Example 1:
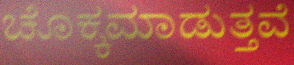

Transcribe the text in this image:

ಚೊಕ್ಕಮಾಡುತ್ತವೆ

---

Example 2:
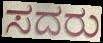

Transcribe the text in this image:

ಸದರು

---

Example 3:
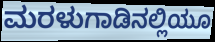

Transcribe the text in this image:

ಮರಳುಗಾಡಿನಲ್ಲಿಯೂ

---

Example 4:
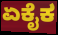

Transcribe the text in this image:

ಏಕೈಕ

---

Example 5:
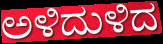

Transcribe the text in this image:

ಅಳಿದುಳಿದ